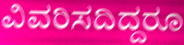
ವಿವರಿಸದಿದ್ದರೂ